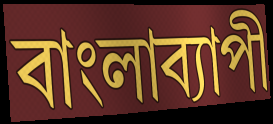
বাংলাব্যাপী